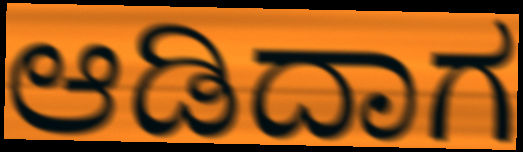
ಆಡಿದಾಗ